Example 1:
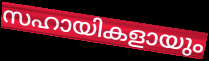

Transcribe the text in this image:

സഹായികളായും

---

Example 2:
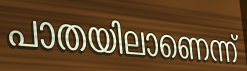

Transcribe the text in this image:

പാതയിലാണെന്ന്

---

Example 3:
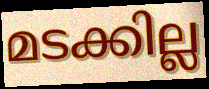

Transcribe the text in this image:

മടക്കില്ല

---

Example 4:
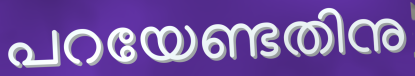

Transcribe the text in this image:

പറയേണ്ടതിനു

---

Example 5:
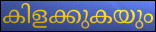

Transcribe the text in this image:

കിളക്കുകയും